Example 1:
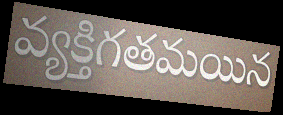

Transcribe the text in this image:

వ్యక్తిగతమయిన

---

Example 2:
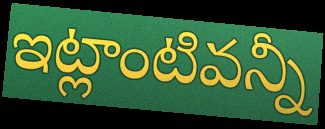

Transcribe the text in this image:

ఇట్లాంటివన్నీ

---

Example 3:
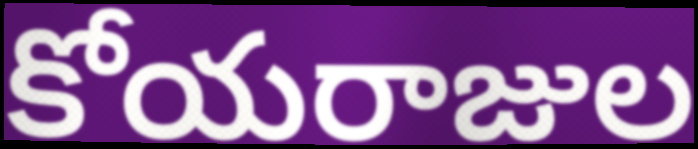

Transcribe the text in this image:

కోయరాజుల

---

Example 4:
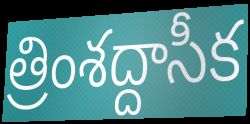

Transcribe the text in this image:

త్రింశద్దాసీక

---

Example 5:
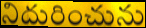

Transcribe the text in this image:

నిదురించును